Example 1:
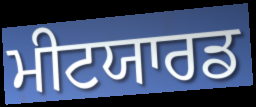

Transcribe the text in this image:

ਮੀਟਯਾਰਡ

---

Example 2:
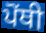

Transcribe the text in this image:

ਪੋਂਥੀ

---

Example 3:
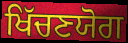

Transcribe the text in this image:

ਖਿੱਚਣਯੋਗ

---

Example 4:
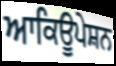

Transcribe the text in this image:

ਆਕਿਊਪੇਸ਼ਨ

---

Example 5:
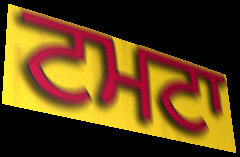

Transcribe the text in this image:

ਟਮਟਾ